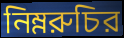
নিম্নরুচির